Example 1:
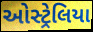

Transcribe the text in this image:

ઓસ્ટ્રેલિયા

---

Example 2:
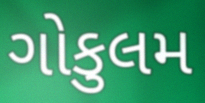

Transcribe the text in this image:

ગોકુલમ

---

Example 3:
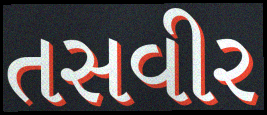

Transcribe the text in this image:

તસવીર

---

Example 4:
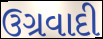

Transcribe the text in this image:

ઉગ્રવાદી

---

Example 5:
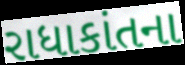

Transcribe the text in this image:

રાધાકાંતના